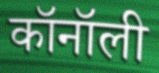
कॉनॉली